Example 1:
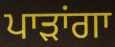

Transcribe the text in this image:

ਪਾੜਾਂਗਾ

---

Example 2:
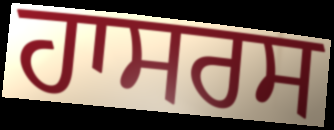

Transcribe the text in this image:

ਹਾਸਰਸ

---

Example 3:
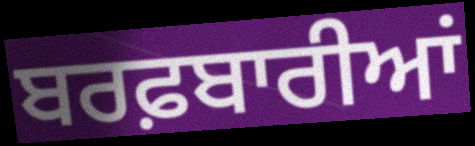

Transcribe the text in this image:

ਬਰਫ਼ਬਾਰੀਆਂ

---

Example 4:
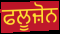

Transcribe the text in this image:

ਫਲੂਜ਼ੋਨ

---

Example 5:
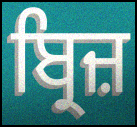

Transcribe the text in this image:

ਬ੍ਰਿਜ਼